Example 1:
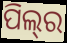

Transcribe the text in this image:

ପିଲ୍‌ର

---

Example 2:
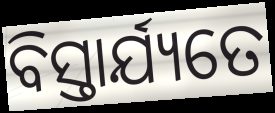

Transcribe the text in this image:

ବିସ୍ତାର୍ଯ୍ୟତେ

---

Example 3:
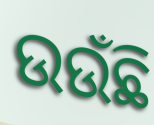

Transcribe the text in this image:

ଉଉଁଛି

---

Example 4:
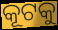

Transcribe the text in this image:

କୂଟକୁ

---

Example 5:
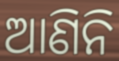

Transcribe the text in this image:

ଆଣିନି